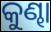
କୁଣ୍ଢା